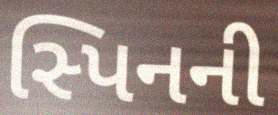
સ્પિનની